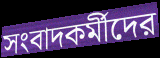
সংবাদকর্মীদের